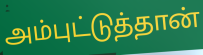
அம்புட்டுத்தான்